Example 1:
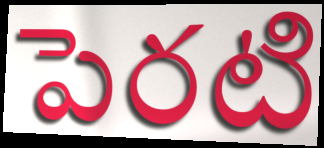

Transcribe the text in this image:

పెరటి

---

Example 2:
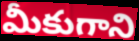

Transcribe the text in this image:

మీకుగాని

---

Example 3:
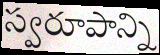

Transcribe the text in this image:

స్వరూపాన్ని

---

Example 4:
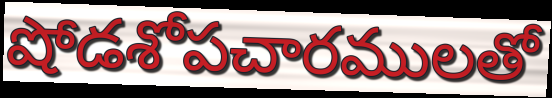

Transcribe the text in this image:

షోడశోపచారములతో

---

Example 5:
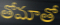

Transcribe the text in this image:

తోమాతో